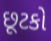
છૂટકો